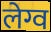
लेग्व